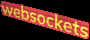
websockets